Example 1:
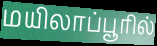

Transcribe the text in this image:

மயிலாப்பூரில்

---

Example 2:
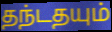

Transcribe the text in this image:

தந்டதயும்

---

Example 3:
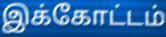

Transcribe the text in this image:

இக்கோட்டம்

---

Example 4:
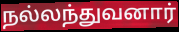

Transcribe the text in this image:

நல்லந்துவனார்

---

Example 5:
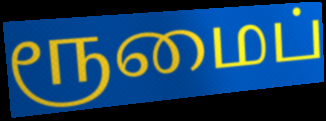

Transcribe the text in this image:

ரூமைப்